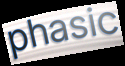
phasic